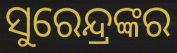
ସୁରେନ୍ଦ୍ରଙ୍କର